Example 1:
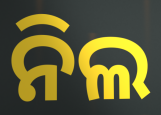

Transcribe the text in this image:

ନିଲ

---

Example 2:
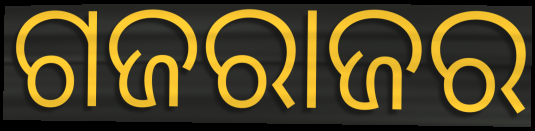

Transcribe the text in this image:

ଗଜରାଜର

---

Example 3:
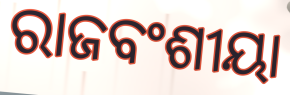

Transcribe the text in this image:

ରାଜବଂଶୀୟା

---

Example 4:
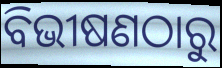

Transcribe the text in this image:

ବିଭୀଷଣଠାରୁ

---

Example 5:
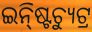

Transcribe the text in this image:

ଇନ୍ଷ୍ଟିଚ୍ୟୁଟ୍ର